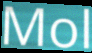
Mol